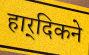
हार्दिकने